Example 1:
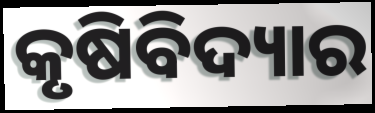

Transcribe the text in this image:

କୃଷିବିଦ୍ୟାର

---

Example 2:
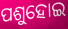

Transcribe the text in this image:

ପଶୁହୋଇ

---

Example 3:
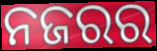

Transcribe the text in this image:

ନଜରର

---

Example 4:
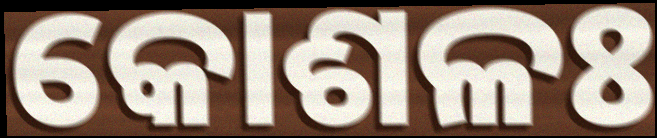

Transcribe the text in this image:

କୋଶଳଃ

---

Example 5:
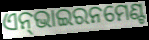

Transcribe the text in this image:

ଏନ୍‌ଭାଇରନମେଣ୍ଟ